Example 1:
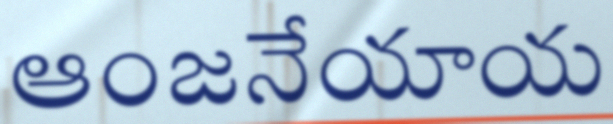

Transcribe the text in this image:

ఆంజనేయాయ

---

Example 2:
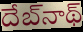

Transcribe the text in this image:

దేబ్‌నాథ్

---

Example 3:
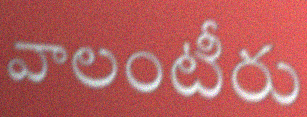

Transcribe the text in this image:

వాలంటీరు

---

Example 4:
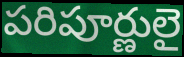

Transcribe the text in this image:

పరిపూర్ణులై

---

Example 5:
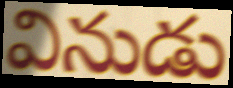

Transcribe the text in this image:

వినుడు